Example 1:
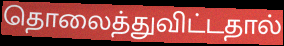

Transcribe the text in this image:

தொலைத்துவிட்டதால்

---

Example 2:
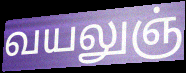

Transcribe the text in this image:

வயலுஞ்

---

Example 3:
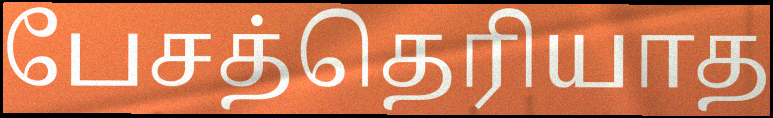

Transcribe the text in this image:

பேசத்தெரியாத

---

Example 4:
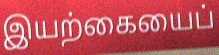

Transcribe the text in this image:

இயற்கையைப்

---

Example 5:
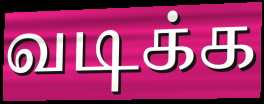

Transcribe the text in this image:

வடிக்க